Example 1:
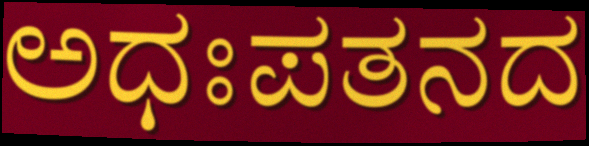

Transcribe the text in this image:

ಅಧಃಪತನದ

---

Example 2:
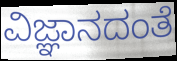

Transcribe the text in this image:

ವಿಜ್ಞಾನದಂತೆ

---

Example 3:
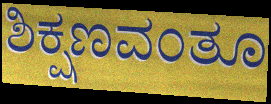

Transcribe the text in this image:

ಶಿಕ್ಷಣವಂತೂ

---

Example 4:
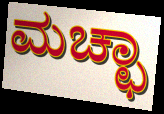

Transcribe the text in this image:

ಮಚ್ಛಾ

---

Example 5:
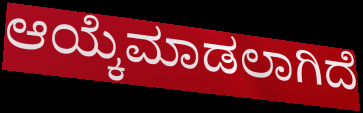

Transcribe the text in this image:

ಆಯ್ಕೆಮಾಡಲಾಗಿದೆ